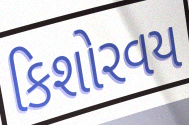
કિશોરવય